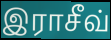
இராசீவ்